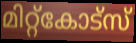
മിറ്റ്കോട്സ്